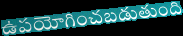
ఉపయోగించబడుతుంది